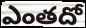
ఎంతదో